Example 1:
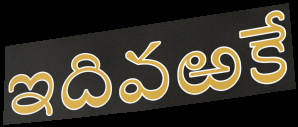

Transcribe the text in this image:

ఇదివఱకే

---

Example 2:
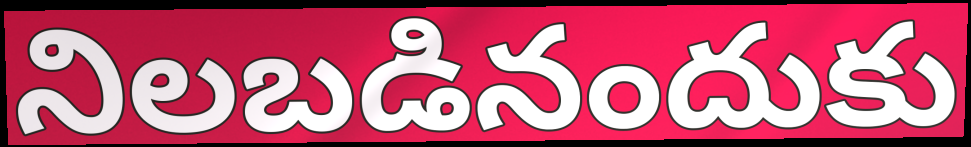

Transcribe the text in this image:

నిలబడినందుకు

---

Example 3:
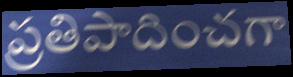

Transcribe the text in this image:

ప్రతిపాదించగా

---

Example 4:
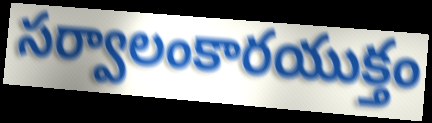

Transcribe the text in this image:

సర్వాలంకారయుక్తం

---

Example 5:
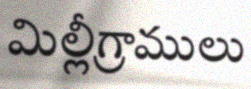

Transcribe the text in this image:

మిల్లీగ్రాములు